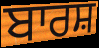
ਬਾਰਸ਼